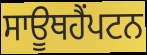
ਸਾਊਥਹੈਂਪਟਨ